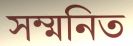
সম্মনিত